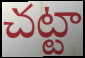
చట్టా